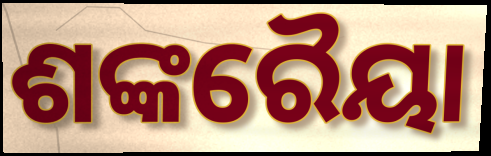
ଶଙ୍କରୈୟା